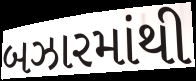
બઝારમાંથી